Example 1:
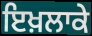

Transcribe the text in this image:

ਇਖ਼ਲਾਕੇ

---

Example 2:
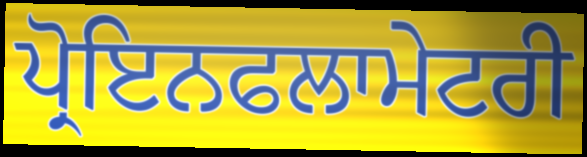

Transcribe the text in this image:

ਪ੍ਰੋਇਨਫਲਾਮੇਟਰੀ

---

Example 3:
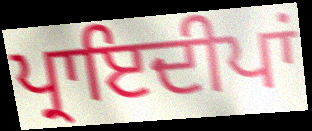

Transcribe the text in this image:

ਪ੍ਰਾਇਦੀਪਾਂ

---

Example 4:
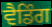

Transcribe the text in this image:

ਵੈਡਿੰਗ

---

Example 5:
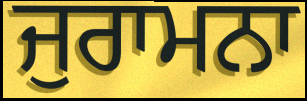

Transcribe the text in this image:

ਜੁਰਾਮਨਾ